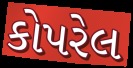
કોપરેલ